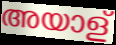
അയാള്